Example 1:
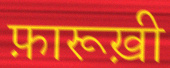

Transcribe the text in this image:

फ़ारूख़ी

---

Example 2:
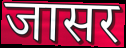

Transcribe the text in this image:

जासर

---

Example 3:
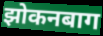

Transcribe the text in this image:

झोकनबाग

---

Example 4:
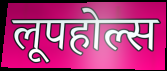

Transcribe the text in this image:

लूपहोल्स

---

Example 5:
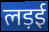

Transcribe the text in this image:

लड़ई